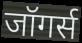
जॉगर्स